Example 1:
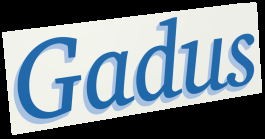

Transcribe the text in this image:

Gadus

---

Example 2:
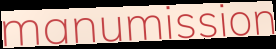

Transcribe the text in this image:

manumission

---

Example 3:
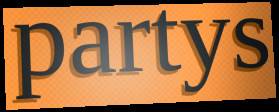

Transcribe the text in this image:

partys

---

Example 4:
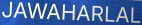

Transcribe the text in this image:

JAWAHARLAL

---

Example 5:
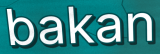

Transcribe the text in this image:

bakan